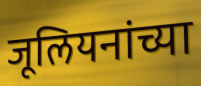
जूलियनांच्या